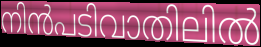
നിൻപടിവാതിലിൽ